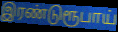
இரண்டுரூபாய்